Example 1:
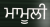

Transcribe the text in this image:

ਮਾਮੂਲੀ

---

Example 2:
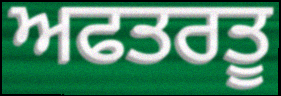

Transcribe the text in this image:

ਅਫਤਰਤੂ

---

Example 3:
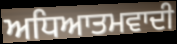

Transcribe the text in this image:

ਅਧਿਆਤਮਵਾਦੀ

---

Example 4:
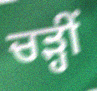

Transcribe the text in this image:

ਚੜ੍ਹੀਂ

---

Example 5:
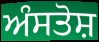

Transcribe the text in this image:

ਅੰਸਤੋਸ਼